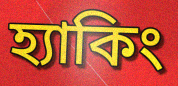
হ্যাকিং